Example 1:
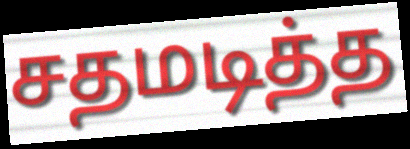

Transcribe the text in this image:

சதமடித்த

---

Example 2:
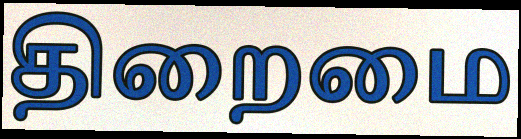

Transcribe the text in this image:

திறைமை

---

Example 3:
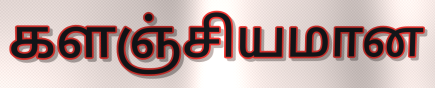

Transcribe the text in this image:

களஞ்சியமான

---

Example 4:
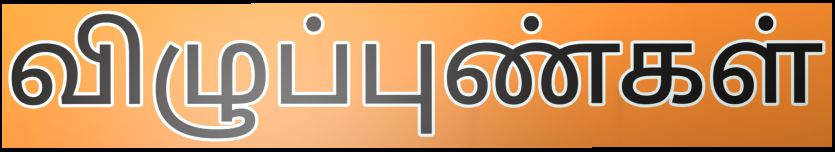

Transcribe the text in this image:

விழுப்புண்கள்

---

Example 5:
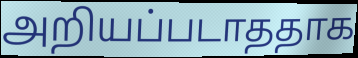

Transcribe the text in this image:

அறியப்படாததாக